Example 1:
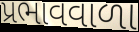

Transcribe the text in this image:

પ્રભાવવાળા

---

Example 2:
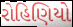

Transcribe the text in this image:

રોહિણિયો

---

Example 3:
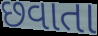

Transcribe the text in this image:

છવાતા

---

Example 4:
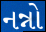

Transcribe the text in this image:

નન્નો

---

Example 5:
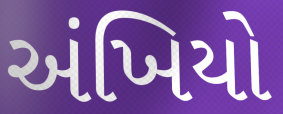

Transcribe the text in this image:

અંખિયો